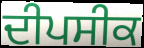
ਦੀਪਸੀਕ